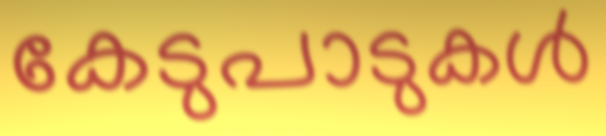
കേടുപാടുകൾ